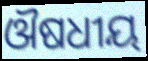
ଔଷଧୀୟ